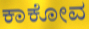
ಕಾಕೋವ